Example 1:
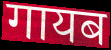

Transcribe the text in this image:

गायब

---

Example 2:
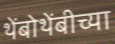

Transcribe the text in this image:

थेंबोथेंबीच्या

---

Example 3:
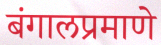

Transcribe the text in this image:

बंगालप्रमाणे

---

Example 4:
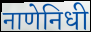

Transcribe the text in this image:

नाणेनिधी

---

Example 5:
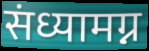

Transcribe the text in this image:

संध्यामग्न